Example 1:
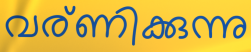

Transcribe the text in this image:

വര്ണിക്കുന്നു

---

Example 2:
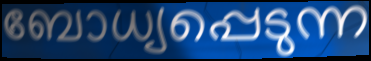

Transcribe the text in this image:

ബോധ്യപ്പെടുന്ന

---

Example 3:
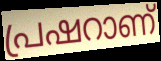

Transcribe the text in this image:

പ്രഷറാണ്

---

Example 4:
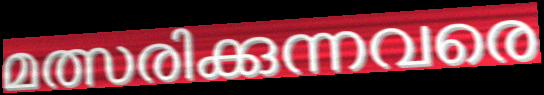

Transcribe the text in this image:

മത്സരിക്കുന്നവരെ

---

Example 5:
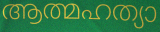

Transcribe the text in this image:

ആത്മഹത്യാ